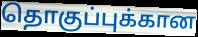
தொகுப்புக்கான